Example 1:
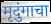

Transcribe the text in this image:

मृदुंगाचा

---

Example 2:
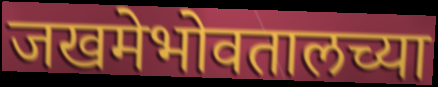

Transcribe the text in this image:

जखमेभोवतालच्या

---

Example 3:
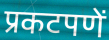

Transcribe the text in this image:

प्रकटपणें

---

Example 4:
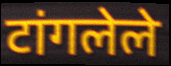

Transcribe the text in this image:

टांगलेले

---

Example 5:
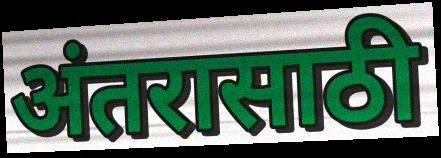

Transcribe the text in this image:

अंतरासाठी